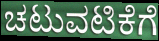
ಚಟುವಟಿಕೆಗೆ